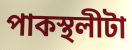
পাকস্থলীটা